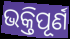
ଭକ୍ତିପୂର୍ଣ